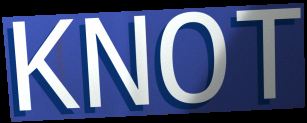
KNOT